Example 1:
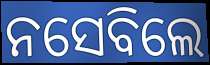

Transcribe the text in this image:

ନସେବିଲେ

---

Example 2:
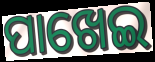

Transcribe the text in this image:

ପାଖେଇ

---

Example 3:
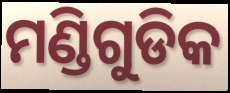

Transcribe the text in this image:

ମଣ୍ଡିଗୁଡିକ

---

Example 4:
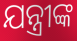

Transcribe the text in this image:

ଯନ୍ତ୍ରୀଙ୍କ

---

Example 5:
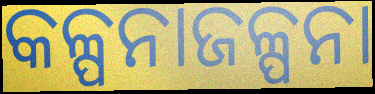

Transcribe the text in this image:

କଳ୍ପନାଜଳ୍ପନା